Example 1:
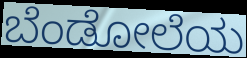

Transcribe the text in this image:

ಬೆಂಡೋಲೆಯ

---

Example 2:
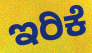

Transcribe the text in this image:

ಇರಿಕೆ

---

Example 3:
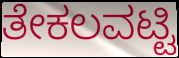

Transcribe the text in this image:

ತೇಕಲವಟ್ಟಿ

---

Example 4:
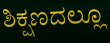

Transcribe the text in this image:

ಶಿಕ್ಷಣದಲ್ಲೂ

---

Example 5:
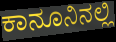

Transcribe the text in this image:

ಕಾನೂನಿನಲ್ಲಿ